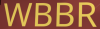
WBBR